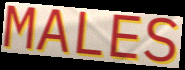
MALES